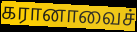
கரானாவைச்